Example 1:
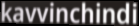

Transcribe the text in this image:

kavvinchindi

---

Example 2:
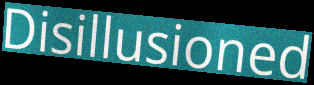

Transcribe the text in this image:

Disillusioned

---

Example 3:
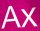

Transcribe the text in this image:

Ax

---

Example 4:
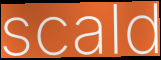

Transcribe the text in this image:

scald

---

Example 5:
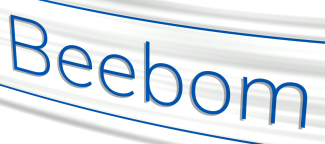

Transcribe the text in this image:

Beebom